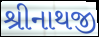
શ્રીનાથજી